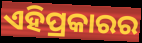
ଏହିପ୍ରକାରର